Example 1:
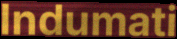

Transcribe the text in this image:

Indumati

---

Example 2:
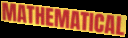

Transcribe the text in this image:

MATHEMATICAL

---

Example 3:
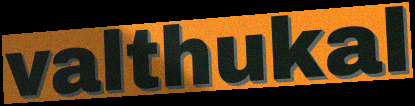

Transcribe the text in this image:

valthukal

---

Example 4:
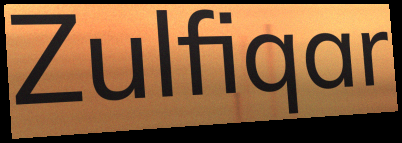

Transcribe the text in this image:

Zulfiqar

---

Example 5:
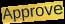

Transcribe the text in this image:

Approve